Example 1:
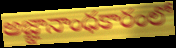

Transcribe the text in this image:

అజ్ఞానాంధకారంలో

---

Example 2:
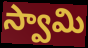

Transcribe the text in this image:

స్వామి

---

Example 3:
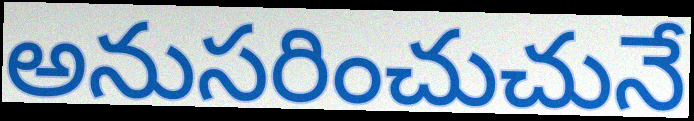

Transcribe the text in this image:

అనుసరించుచునే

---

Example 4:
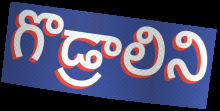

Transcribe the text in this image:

గొడ్రాలిని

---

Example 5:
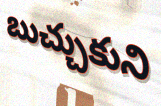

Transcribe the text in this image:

బుచ్చుకుని